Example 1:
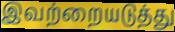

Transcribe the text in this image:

இவற்றையடுத்து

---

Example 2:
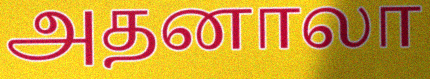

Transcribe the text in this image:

அதனாலா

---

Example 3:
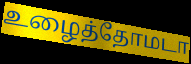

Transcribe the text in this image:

உழைத்தோமடா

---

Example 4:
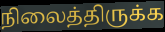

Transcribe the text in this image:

நிலைத்திருக்க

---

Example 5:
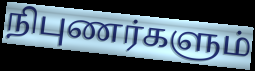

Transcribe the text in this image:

நிபுணர்களும்